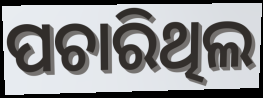
ପଚାରିଥିଲ